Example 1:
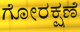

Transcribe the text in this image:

ಗೋರಕ್ಷಣೆ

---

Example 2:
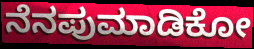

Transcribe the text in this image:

ನೆನಪುಮಾಡಿಕೋ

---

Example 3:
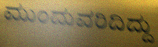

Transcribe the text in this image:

ಮುಂದುವರಿದಿದ್ದು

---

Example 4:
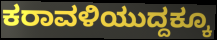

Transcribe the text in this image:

ಕರಾವಳಿಯುದ್ದಕ್ಕೂ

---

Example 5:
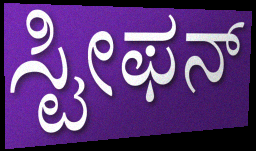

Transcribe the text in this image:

ಸ್ಟೀಫನ್